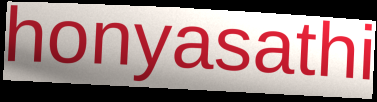
honyasathi